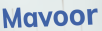
Mavoor